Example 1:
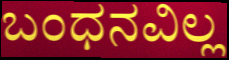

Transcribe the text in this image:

ಬಂಧನವಿಲ್ಲ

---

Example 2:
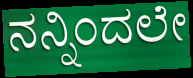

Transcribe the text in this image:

ನನ್ನಿಂದಲೇ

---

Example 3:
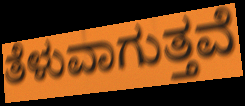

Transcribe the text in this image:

ತೆಳುವಾಗುತ್ತವೆ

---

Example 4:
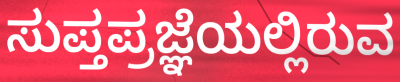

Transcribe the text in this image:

ಸುಪ್ತಪ್ರಜ್ಞೆಯಲ್ಲಿರುವ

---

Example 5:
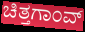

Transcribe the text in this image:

ಚಿತ್ತಗಾಂವ್